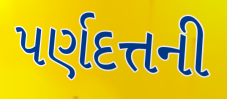
પર્ણદત્તની